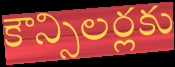
కౌన్సిలర్లకు